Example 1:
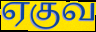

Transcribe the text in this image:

ஏகுவ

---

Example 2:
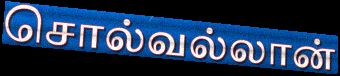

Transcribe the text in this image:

சொல்வல்லான்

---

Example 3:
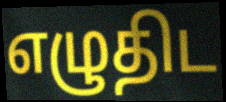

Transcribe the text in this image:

எழுதிட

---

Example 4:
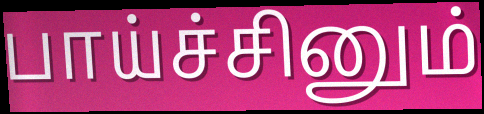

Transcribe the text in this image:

பாய்ச்சினும்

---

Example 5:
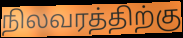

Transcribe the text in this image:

நிலவரத்திற்கு